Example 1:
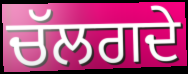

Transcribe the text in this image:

ਚੱਲਗਦੇ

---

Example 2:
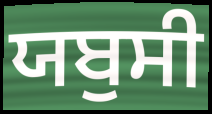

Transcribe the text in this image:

ਯਬੁਸੀ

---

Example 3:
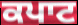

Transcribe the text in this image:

ਕਪਾਟ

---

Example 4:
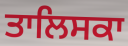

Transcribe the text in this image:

ਤਾਲਿਸਕਾ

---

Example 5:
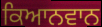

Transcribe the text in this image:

ਕਿਆਨਵਾਨ